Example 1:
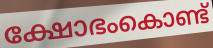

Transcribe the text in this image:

ക്ഷോഭംകൊണ്ട്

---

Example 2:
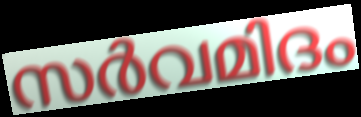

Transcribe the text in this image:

സർവമിദം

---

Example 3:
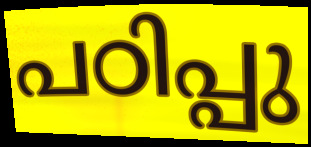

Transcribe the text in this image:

പഠിപ്പു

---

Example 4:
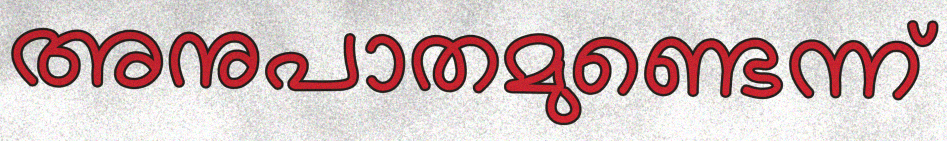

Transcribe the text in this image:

അനുപാതമുണ്ടെന്ന്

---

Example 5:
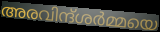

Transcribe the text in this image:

അരവിന്ദ്ശർമ്മയെ